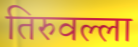
तिरुवल्ला